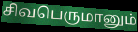
சிவபெருமானும்